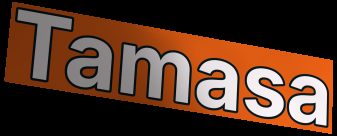
Tamasa